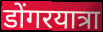
डोंगरयात्रा